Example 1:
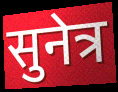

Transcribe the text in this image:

सुनेत्र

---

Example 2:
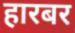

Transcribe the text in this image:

हारबर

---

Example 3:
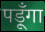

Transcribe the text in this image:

पड़ूँगा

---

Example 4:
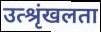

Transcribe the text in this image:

उत्श्रृंखलता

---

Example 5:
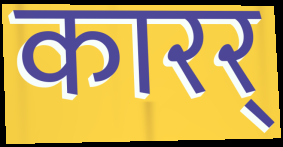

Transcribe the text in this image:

कारर्